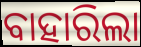
ବାହାରିଲା